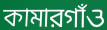
কামারগাঁও